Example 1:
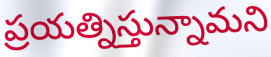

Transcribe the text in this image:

ప్రయత్నిస్తున్నామని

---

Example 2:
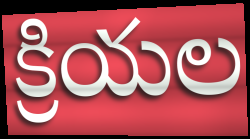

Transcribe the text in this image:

క్రియల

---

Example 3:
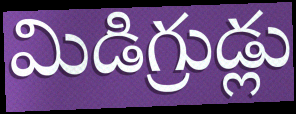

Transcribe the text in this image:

మిడిగ్రుడ్లు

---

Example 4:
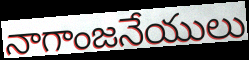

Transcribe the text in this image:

నాగాంజనేయులు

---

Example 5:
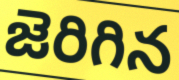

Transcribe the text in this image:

జెరిగిన